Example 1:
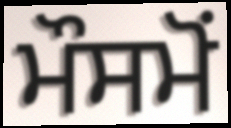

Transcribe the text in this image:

ਮੌਸਮੋਂ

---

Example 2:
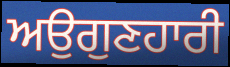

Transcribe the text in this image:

ਅਉਗੁਣਹਾਰੀ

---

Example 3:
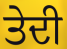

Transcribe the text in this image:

ਤੇਦੀ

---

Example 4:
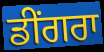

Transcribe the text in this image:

ਡੀਂਗਰਾ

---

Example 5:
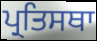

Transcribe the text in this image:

ਪ੍ਰਤਿਸਥਾ